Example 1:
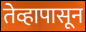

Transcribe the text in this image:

तेव्हापासून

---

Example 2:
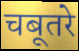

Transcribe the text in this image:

चबूतरे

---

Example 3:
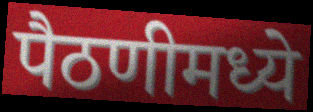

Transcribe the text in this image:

पैठणीमध्ये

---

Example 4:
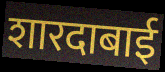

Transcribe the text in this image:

शारदाबाई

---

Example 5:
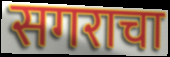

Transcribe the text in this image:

सगराचा